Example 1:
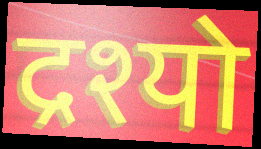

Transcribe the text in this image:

द्रश्यो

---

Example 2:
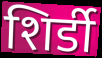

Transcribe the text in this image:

शिर्डी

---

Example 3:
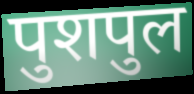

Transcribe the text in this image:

पुशपुल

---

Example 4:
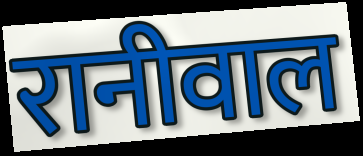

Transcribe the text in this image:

रानीवाल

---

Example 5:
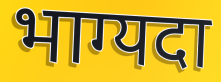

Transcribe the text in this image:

भाग्यदा